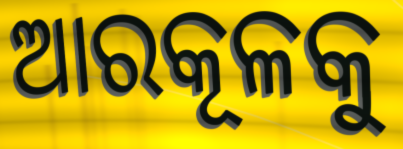
ଆରକୂଳକୁ